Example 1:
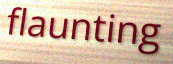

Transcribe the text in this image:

flaunting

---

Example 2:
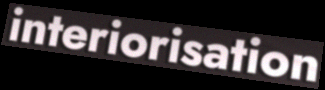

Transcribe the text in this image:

interiorisation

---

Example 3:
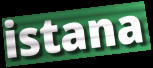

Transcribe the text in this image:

istana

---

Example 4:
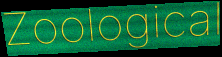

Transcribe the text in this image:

Zoological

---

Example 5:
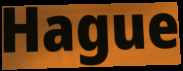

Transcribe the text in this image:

Hague